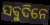
ସବୁଦିନେ